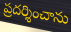
ప్రదర్శించాను